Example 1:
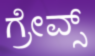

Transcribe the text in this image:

ಗ್ರೇವ್ಸ್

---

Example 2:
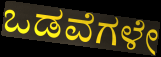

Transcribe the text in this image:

ಒಡವೆಗಳೇ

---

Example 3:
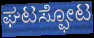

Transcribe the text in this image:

ಘಟಸ್ಫೋಟ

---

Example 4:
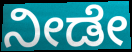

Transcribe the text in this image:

ನೀಡೇ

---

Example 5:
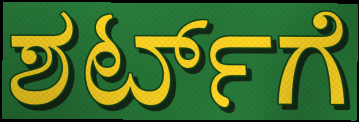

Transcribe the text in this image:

ಶರ್ಟ್‌ಗೆ